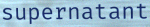
supernatant